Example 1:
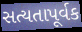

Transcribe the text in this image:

સત્યતાપૂર્વક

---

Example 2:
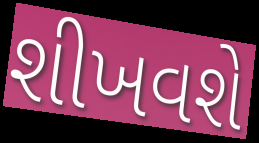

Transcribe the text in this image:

શીખવશે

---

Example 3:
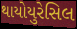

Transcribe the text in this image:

થાયોયુરેસિલ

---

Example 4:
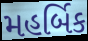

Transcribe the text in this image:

મહર્બિક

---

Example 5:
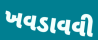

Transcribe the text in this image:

ખવડાવવી